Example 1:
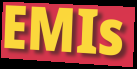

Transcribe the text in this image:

EMIs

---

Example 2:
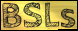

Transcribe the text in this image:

BSLs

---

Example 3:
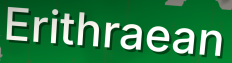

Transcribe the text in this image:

Erithraean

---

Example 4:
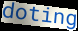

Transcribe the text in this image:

doting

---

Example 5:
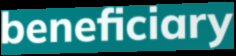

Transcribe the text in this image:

beneficiary